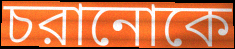
চরানোকে